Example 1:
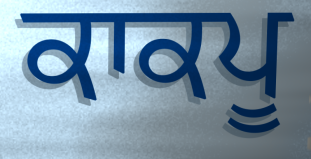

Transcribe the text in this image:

ਕਾਕਪੂ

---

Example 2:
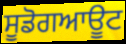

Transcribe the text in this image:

ਸੂਡੋਗਆਊਟ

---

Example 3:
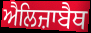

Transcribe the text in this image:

ਐਲਿਜ਼ਾਬੈਥ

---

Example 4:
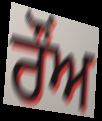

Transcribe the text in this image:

ਰੌਂਅ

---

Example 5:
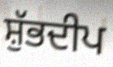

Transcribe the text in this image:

ਸ਼ੁੱਭਦੀਪ